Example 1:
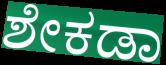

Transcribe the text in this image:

ಶೇಕಡಾ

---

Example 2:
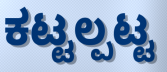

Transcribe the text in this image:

ಕಟ್ಟಲ್ಪಟ್ಟ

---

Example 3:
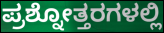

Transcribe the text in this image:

ಪ್ರಶ್ನೋತ್ತರಗಳಲ್ಲಿ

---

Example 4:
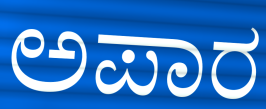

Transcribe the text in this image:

ಅಪಾರ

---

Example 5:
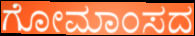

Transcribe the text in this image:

ಗೋಮಾಂಸದ